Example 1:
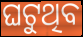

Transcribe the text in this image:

ଘଟୁଥିବ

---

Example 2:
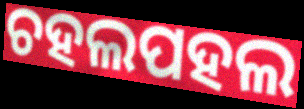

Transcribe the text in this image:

ଚହଲପହଲ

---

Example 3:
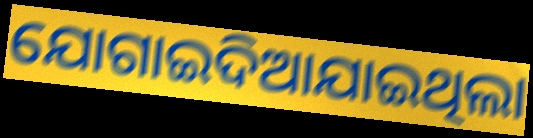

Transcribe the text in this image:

ଯୋଗାଇଦିଆଯାଇଥିଲା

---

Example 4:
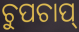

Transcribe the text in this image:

ଚୁପଚାପ୍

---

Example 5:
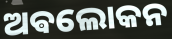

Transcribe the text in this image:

ଅଵଲୋକନ